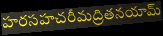
హరసహచరీమద్రితనయామ్